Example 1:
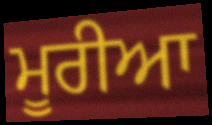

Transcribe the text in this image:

ਮੂਰੀਆ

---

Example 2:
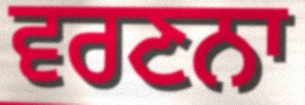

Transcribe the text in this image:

ਵਰਣਨਾ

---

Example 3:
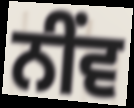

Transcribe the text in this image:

ਨੀਂਵ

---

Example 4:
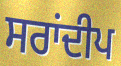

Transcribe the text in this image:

ਸਰਾਂਦੀਪ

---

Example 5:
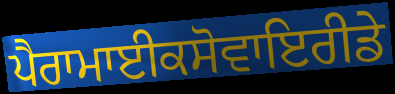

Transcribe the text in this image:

ਪੈਰਾਮਾਈਕਸੋਵਾਇਰੀਡੇ